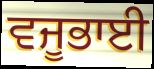
ਵਜੂਭਾਈ